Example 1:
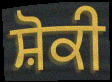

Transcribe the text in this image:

ਸ਼ੋਕੀ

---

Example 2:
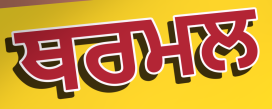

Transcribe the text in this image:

ਥਰਮਲ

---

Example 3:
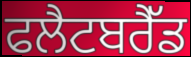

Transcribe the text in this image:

ਫਲੈਟਬਰੈੱਡ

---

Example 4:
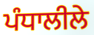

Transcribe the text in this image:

ਪੰਧਾਲੀਲੇ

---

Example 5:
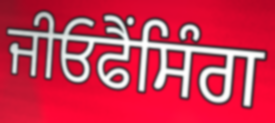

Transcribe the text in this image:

ਜੀਓਫੈਂਸਿੰਗ